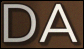
DA